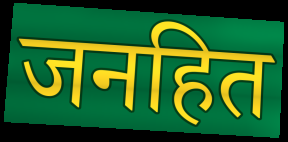
जनहित